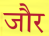
जौर